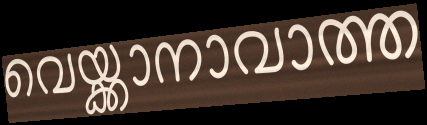
വെയ്ക്കാനാവാത്ത